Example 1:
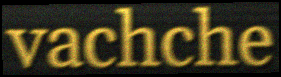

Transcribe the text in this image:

vachche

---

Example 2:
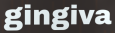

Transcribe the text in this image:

gingiva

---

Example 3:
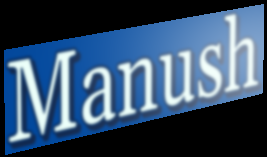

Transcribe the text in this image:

Manush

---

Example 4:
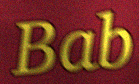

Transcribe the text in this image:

Bab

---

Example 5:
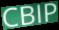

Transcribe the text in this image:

CBIP